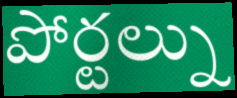
పోర్టల్ను